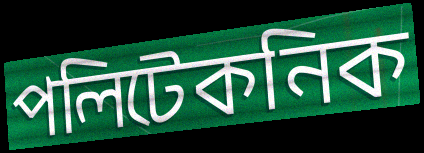
পলিটেকনিক